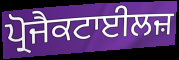
ਪ੍ਰੋਜੈਕਟਾਈਲਜ਼